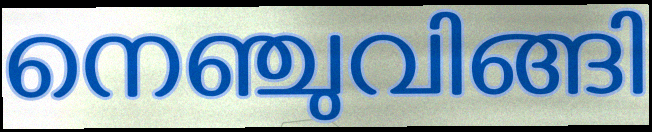
നെഞ്ചുവിങ്ങി